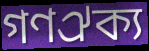
গণঐক্য